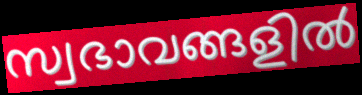
സ്വഭാവങ്ങളിൽ